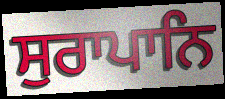
ਸੁਰਾਪਾਨਿ